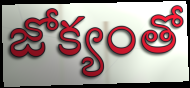
జోక్యంతో